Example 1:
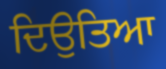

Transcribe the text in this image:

ਦਿਉਤਿਆ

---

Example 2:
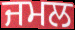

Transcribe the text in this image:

ਜਮਲ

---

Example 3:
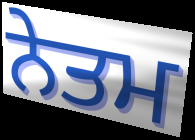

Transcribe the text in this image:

ਨੇਤਮ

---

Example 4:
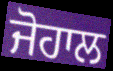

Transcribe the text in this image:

ਜੋਹਾਲ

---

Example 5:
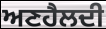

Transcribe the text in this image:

ਅਣਹੈਲਦੀ